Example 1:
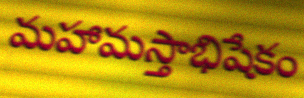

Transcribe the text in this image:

మహామస్తాభిషేకం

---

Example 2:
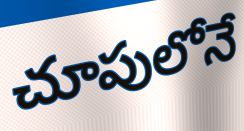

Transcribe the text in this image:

చూపులోనే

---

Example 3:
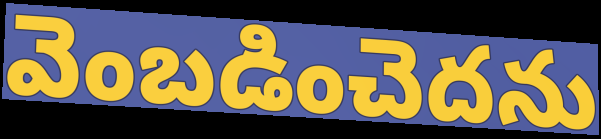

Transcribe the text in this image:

వెంబడించెదను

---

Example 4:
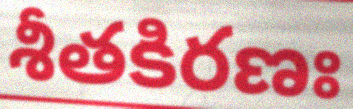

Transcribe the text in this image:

శీతకిరణః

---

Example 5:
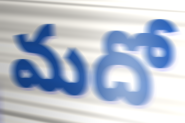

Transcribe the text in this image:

మదో